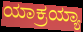
ಯಾಕ್ರಯ್ಯಾ